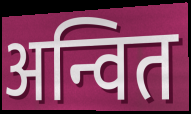
अन्वित